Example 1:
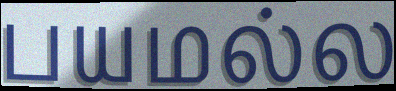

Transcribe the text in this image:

பயமல்ல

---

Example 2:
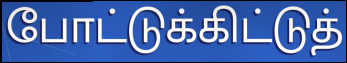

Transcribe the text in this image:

போட்டுக்கிட்டுத்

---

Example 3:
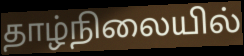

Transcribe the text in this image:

தாழ்நிலையில்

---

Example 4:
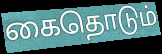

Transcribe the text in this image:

கைதொடும்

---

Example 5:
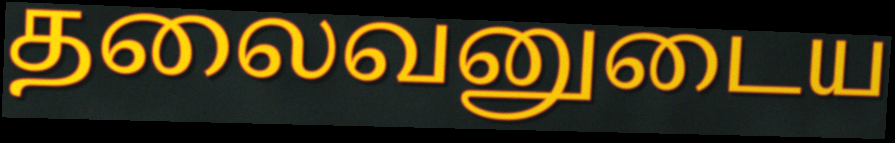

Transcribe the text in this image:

தலைவனுடைய